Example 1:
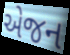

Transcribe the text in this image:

એજન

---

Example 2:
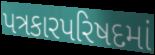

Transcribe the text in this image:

પત્રકારપરિષદમાં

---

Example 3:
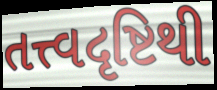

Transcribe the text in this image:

તત્ત્વદૃષ્ટિથી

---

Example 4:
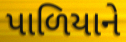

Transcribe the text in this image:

પાળિયાને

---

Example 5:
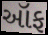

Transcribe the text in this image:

ઑફ